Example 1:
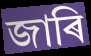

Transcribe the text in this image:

জাৰি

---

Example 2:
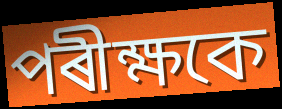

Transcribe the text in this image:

পৰীক্ষকে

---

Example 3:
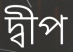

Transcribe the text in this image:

দ্বীপ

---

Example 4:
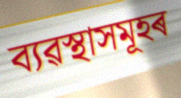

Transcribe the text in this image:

ব্যৱস্থাসমূহৰ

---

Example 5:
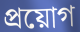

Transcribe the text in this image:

প্ৰয়োগ